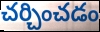
చర్చించడం